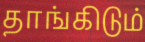
தாங்கிடும்